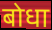
बोधा